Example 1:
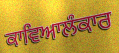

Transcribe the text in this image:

ਕਾਵਿਆਲੰਕਾਰ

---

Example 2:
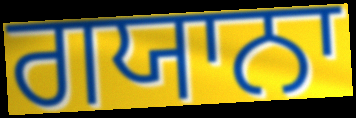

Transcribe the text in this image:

ਗਯਾਨਾ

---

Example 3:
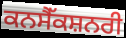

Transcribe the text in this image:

ਕਨਸੈੱਕਸ਼ਨਰੀ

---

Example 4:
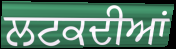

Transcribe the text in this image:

ਲਟਕਦੀਆਂ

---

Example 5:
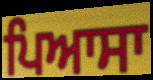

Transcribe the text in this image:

ਪਿਆਸਾ